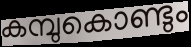
കമ്പുകൊണ്ടും